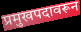
प्रमुखपदावरून